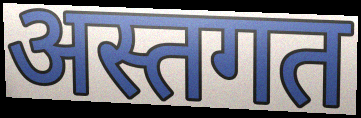
अस्तगत